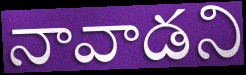
నావాడని